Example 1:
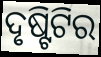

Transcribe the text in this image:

ଦୃଷ୍ଟିଟିର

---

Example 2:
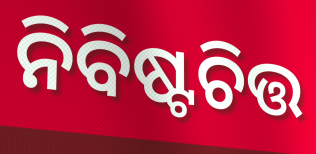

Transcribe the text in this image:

ନିବିଷ୍ଟଚିତ୍ତ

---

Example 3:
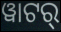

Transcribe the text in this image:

ୱାଟର୍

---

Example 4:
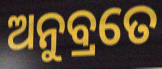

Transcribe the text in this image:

ଅନୁବ୍ରତେ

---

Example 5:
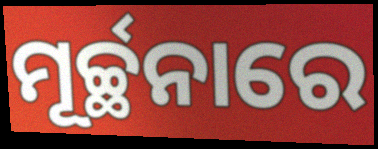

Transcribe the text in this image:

ମୂର୍ଚ୍ଛନାରେ